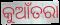
କୁଆଁତରା